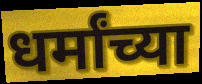
धर्मांच्या